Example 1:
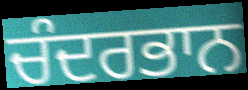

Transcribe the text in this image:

ਚੰਦਰਭਾਨ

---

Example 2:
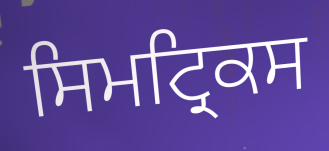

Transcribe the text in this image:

ਸਿਮਟ੍ਰਿਕਸ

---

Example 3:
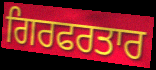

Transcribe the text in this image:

ਗਿਰਫਰਤਾਰ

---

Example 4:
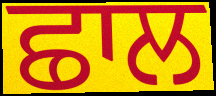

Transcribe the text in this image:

ਛਾਲ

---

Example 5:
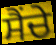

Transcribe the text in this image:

ਸੈਂਚੇ